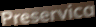
Preservica